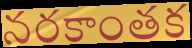
నరకాంతక